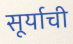
सूर्याची